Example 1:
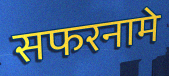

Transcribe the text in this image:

सफरनामे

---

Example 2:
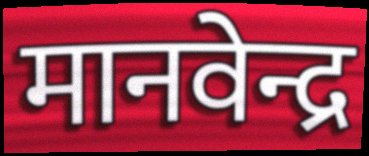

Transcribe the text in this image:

मानवेन्द्र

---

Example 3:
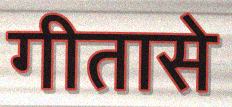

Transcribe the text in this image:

गीतासे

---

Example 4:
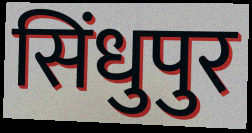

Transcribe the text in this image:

सिंधुपुर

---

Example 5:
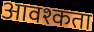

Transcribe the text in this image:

आवश्कता